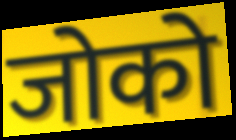
जोको